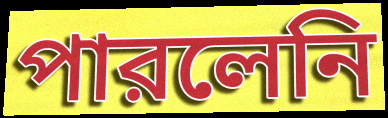
পারলেনি